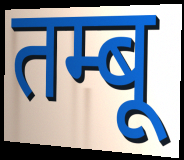
तम्बू